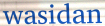
wasidan